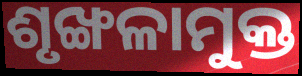
ଶୃଙ୍ଖଳାମୁକ୍ତ